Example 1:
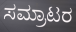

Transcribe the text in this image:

ಸಮ್ರಾಟರ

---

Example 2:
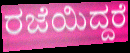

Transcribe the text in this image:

ರಜೆಯಿದ್ದರೆ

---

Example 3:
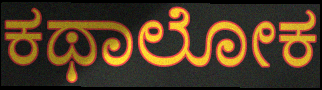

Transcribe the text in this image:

ಕಥಾಲೋಕ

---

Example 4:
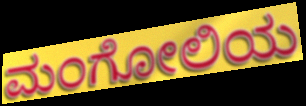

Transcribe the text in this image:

ಮಂಗೋಲಿಯ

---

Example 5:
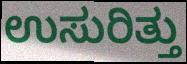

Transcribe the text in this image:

ಉಸುರಿತ್ತು